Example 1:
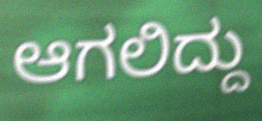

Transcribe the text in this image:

ಆಗಲಿದ್ದು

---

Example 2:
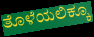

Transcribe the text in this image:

ತೊಳೆಯಲಿಕ್ಕೂ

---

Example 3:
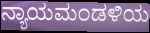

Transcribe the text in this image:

ನ್ಯಾಯಮಂಡಳಿಯ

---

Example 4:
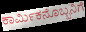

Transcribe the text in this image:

ಕಾರ್ಮಿಕನೊಬ್ಬನಿಗೆ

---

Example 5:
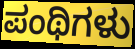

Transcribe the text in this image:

ಪಂಥಿಗಳು